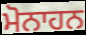
ਮੋਨਾਹਨ